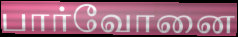
பார்வோனை